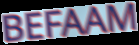
BEFAAM